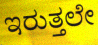
ಇರುತ್ತಲೇ